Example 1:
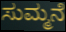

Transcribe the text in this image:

ಸುಮ್ಮನೆ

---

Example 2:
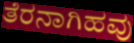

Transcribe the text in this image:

ತೆರನಾಗಿಹವು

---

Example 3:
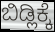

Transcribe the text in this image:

ಬಿಡ್ಲಿಕ್ಕೆ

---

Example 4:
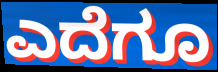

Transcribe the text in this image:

ಎದೆಗೂ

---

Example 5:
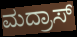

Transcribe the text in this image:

ಮದ್ರಾಸ್